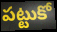
పట్టుకో